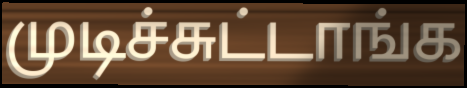
முடிச்சுட்டாங்க